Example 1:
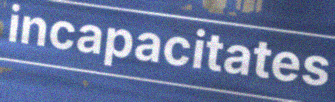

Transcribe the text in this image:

incapacitates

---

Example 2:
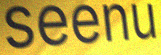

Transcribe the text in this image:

seenu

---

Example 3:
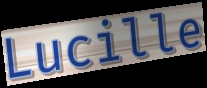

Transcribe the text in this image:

Lucille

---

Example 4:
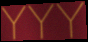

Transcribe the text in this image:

YYY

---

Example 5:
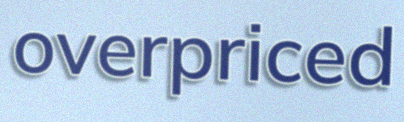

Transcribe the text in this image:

overpriced